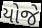
યોજે